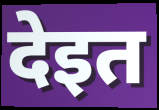
देइत